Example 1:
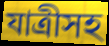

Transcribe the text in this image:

যাত্রীসহ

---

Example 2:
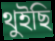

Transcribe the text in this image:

থুইছি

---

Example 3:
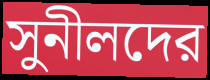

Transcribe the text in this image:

সুনীলদের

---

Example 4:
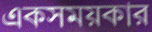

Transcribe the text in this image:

একসময়কার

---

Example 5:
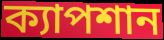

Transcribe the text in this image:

ক্যাপশান